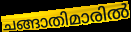
ചങ്ങാതിമാരിൽ